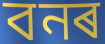
বনৰ